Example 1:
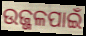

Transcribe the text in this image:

ଉଜ୍ଜଳପାଇଁ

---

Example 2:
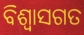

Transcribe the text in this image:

ବିଶ୍ଵାସଗତ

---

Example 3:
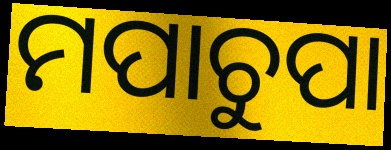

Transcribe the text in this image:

ମପାଚୁପା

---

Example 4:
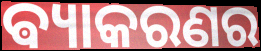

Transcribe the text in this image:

ଵ୍ୟାକରଣର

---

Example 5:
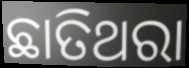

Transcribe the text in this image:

ଛାତିଥରା